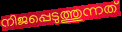
നിജപ്പെടുത്തുന്നത്